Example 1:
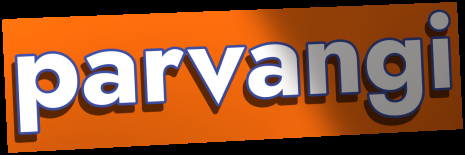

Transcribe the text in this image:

parvangi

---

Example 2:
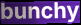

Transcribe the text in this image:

bunchy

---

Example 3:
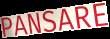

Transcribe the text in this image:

PANSARE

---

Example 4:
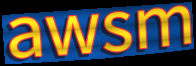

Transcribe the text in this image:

awsm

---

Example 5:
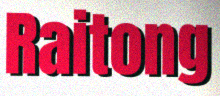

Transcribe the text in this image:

Raitong